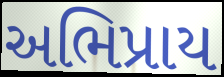
અભિપ્રાય